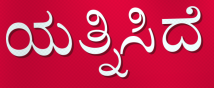
ಯತ್ನಿಸಿದೆ